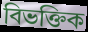
বিভক্তিক